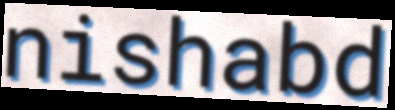
nishabd